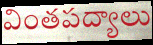
వింతపద్యాలు